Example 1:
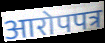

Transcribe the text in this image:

आरोपपत्र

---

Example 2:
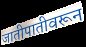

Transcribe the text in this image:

जातीपातीवरून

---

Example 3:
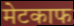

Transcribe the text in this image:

मेटकाफ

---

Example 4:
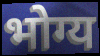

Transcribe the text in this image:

भोग्य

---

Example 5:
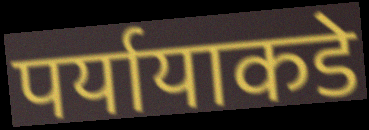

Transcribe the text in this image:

पर्यायाकडे